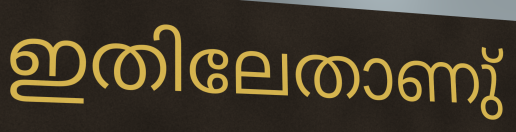
ഇതിലേതാണു്